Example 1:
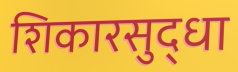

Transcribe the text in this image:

शिकारसुद्धा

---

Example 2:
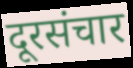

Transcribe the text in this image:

दूरसंचार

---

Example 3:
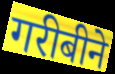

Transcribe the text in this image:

गरीबीने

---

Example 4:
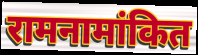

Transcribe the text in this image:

रामनामांकित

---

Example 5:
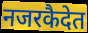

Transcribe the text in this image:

नजरकैदेत